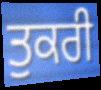
ਤੁਕਰੀ